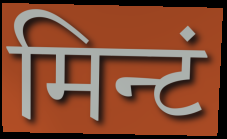
मिन्टं